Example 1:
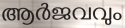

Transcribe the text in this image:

ആർജവവും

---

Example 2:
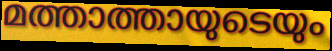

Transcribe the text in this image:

മത്താത്തായുടെയും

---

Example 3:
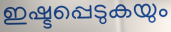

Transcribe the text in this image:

ഇഷ്ടപ്പെടുകയും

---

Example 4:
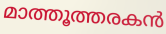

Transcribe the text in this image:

മാത്തൂത്തരകൻ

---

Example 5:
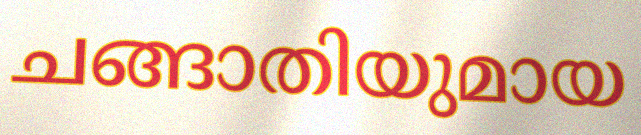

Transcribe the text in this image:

ചങ്ങാതിയുമായ